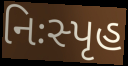
નિઃસ્પૃહ